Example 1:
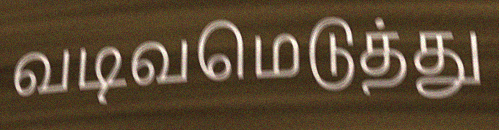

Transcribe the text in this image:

வடிவமெடுத்து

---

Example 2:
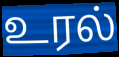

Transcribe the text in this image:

உரல்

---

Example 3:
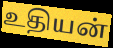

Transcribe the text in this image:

உதியன்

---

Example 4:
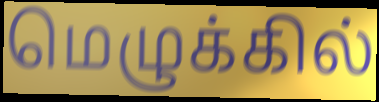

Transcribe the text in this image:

மெழுக்கில்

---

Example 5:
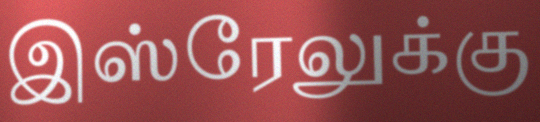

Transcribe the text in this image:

இஸ்ரேலுக்கு